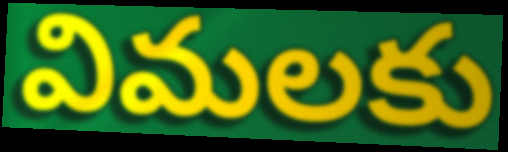
విమలకు